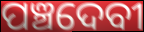
ପଞ୍ଚଦେବୀ